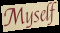
Myself